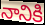
నానికి